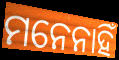
ମନେନାହିଁ